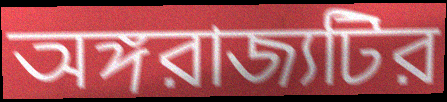
অঙ্গরাজ্যটির